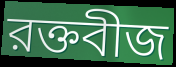
রক্তবীজ